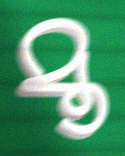
മൂ